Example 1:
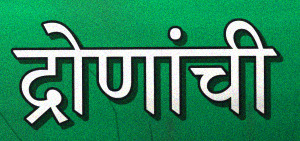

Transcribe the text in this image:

द्रोणांची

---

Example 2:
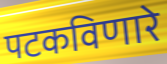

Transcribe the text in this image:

पटकविणारे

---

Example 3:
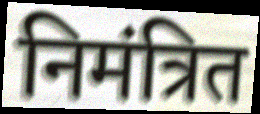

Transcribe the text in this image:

निमंत्रित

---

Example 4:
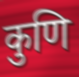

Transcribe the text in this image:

कुणि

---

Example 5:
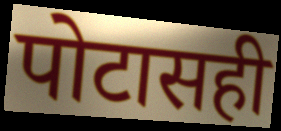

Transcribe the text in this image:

पोटासही